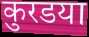
कुरडया